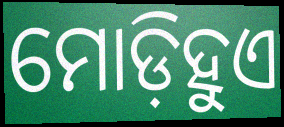
ମୋଡ଼ିହୁଏ